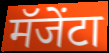
मॅजेंटा